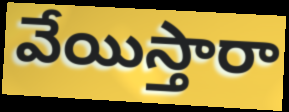
వేయిస్తారా